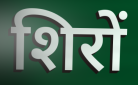
शिरों